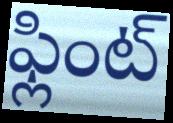
ఫ్లింట్